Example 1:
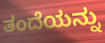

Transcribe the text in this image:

ತಂದೆಯನ್ನು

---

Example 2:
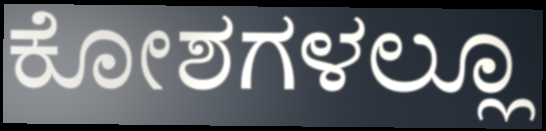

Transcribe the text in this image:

ಕೋಶಗಳಲ್ಲೂ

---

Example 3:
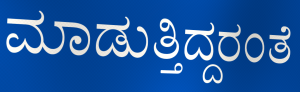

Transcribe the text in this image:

ಮಾಡುತ್ತಿದ್ದರಂತೆ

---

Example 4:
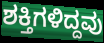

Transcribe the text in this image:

ಶಕ್ತಿಗಳಿದ್ದವು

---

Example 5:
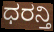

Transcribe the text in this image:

ಧರನ್ತಿ